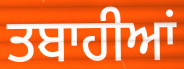
ਤਬਾਹੀਆਂ